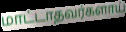
மாட்டாதவர்களாய்